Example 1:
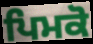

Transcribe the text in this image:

ਪਿਮਕੋ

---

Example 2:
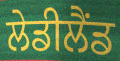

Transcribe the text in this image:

ਲੇਡੀਲੈਂਡ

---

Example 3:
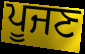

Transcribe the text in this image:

ਪੂਜਣ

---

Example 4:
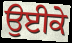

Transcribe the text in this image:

ਉਈਕੇ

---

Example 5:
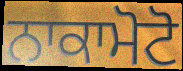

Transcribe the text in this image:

ਨਾਕਾਮੋਟੋ